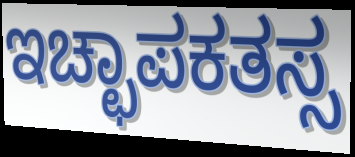
ಇಚ್ಛಾಪಕತಸ್ಸ